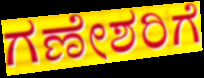
ಗಣೇಶರಿಗೆ